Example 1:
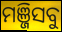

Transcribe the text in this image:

ମଞ୍ଜିସବୁ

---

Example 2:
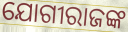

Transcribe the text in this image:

ଯୋଗୀରାଜଙ୍କ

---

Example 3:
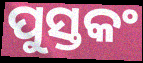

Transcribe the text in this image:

ପୁସ୍ତକଂ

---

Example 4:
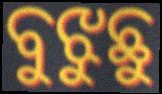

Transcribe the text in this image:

ବୁଝୁଛୁ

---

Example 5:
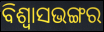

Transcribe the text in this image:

ବିଶ୍ଵାସଭଙ୍ଗର